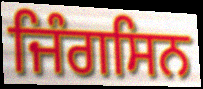
ਜਿੰਗਸਿਨ